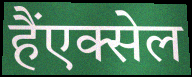
हैंएक्सेल